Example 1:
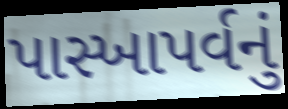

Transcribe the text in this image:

પાસ્ખાપર્વનું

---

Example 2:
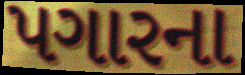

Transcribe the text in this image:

પગારના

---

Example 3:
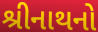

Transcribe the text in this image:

શ્રીનાથનો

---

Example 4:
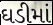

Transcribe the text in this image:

ઘડીમાં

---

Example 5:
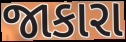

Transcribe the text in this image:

જાકારા